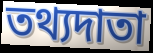
তথ্যদাতা